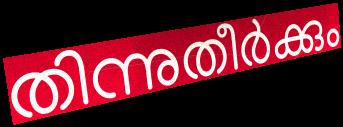
തിന്നുതീർക്കും